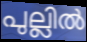
പുല്ലിൽ